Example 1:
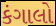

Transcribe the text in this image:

કંગાલો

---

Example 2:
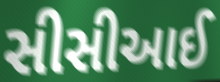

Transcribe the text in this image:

સીસીઆઈ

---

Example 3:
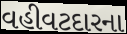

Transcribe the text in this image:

વહીવટદારના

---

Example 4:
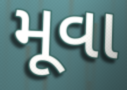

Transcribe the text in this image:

મૂવા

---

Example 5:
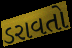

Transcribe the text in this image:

ડરાવતો